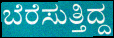
ಬೆರೆಸುತ್ತಿದ್ದ